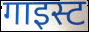
गाइस्ट